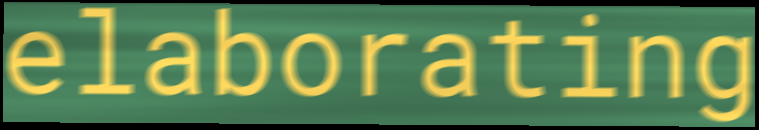
elaborating